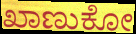
ಖಾಣುಕೋ